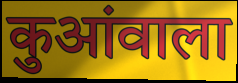
कुआंवाला